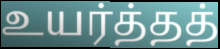
உயர்த்தத்